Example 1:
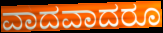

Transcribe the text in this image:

ವಾದವಾದರೂ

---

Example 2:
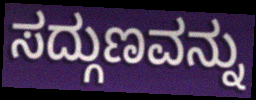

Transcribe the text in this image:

ಸದ್ಗುಣವನ್ನು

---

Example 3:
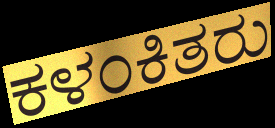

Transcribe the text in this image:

ಕಳಂಕಿತರು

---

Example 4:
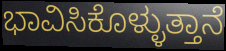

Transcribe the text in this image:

ಭಾವಿಸಿಕೊಳ್ಳುತ್ತಾನೆ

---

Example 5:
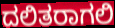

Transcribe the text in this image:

ದಲಿತರಾಗಲಿ